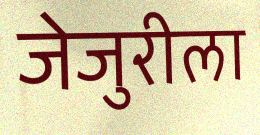
जेजुरीला